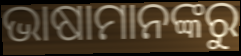
ଭାଷାମାନଙ୍କରୁ